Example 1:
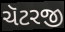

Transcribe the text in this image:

ચૅટરજી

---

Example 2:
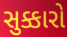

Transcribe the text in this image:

સુક્કારો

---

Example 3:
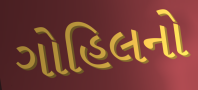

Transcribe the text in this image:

ગોહિલનો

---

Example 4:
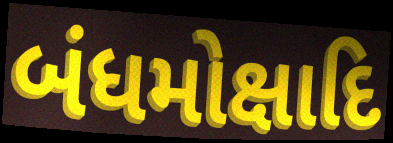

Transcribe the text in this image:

બંધમોક્ષાદિ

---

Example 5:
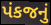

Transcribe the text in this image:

પંકજનું